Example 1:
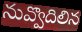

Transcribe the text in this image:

నువ్వొదిలిన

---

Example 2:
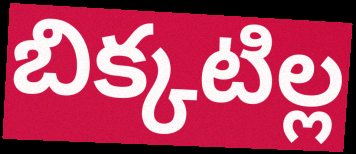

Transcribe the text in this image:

బిక్కటిల్ల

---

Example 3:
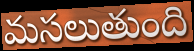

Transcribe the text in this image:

మసలుతుంది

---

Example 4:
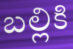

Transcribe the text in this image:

బల్లికి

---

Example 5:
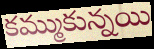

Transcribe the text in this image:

కమ్ముకున్నయి